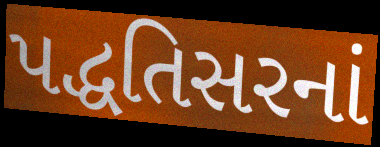
પદ્ધતિસરનાં